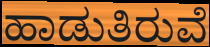
ಹಾಡುತಿರುವೆ